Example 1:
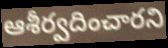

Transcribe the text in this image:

ఆశీర్వదించారని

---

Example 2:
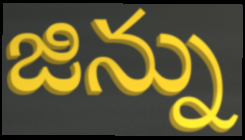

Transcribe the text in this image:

జిన్ను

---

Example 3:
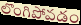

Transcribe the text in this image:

లొంగిపోవడం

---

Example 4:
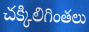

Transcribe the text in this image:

చక్కిలిగింతలు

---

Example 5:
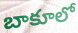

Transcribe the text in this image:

బాకూలో